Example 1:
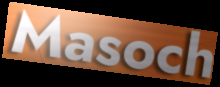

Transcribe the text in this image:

Masoch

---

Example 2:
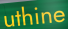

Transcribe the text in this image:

uthine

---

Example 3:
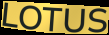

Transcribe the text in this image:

LOTUS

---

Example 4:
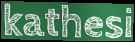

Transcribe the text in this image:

kathesi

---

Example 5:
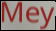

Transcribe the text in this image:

Mey